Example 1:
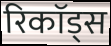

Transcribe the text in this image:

रिकॉड्स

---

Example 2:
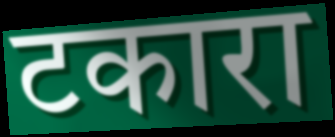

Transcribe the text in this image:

टकारा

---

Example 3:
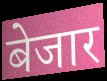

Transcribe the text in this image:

बेजार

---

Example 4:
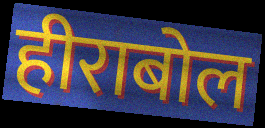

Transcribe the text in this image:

हीराबोल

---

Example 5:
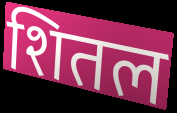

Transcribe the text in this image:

शितल